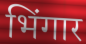
भिंगार